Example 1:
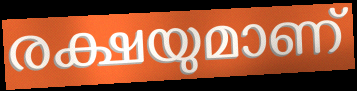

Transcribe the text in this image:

രക്ഷയുമാണ്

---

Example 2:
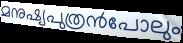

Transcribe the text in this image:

മനുഷ്യപുത്രൻപോലും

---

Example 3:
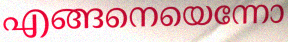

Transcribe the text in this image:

എങ്ങനെയെന്നോ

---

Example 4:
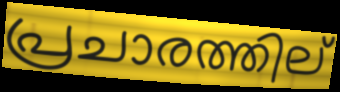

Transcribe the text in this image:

പ്രചാരത്തില്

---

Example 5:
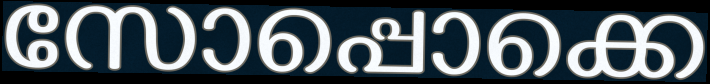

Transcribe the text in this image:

സോപ്പൊക്കെ